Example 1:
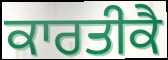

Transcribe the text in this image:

ਕਾਰਤੀਕੈ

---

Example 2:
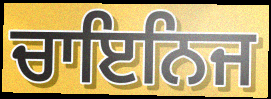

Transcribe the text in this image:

ਚਾਇਨਿਜ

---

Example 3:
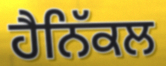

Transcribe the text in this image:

ਹੈਨਿੱਕਲ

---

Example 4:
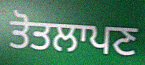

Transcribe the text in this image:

ਤੋਤਲਾਪਣ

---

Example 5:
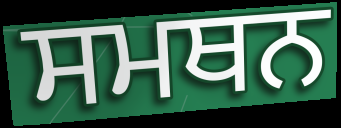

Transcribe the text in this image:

ਸਮਥਨ